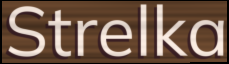
Strelka